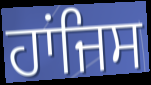
ਹਾਂਜਿਸ